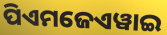
ପିଏମଜେଏୱାଇ